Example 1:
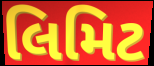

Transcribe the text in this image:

લિમિટ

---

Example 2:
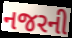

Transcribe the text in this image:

નજરની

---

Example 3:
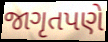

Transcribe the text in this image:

જાગૃતપણે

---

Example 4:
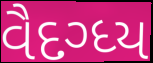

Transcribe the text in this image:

વૈદગ્ધ્ય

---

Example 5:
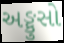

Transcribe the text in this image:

અઙ્કુસો